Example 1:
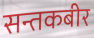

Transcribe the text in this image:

सन्तकबीर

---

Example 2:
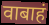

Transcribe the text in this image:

वाबाहं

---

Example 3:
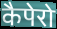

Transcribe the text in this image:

कैपेरो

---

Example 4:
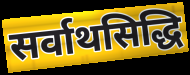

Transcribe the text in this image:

सर्वाथसिद्धि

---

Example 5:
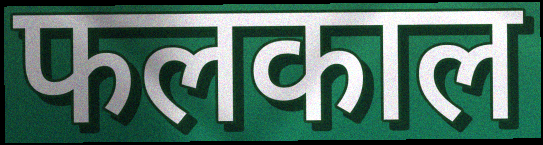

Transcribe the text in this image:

फलकाल